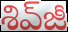
శివ్‌జీ